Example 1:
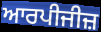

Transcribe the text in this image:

ਆਰਪੀਜੀਜ਼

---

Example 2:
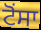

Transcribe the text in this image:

ਟੋਂਸਾ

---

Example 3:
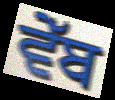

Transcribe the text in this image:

ਵੇੱਬ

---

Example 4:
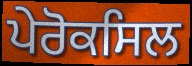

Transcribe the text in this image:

ਪੇਰੋਕਸਿਲ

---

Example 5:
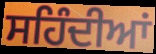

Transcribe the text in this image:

ਸਹਿੰਦੀਆਂ